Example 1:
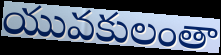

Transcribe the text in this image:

యువకులంతా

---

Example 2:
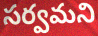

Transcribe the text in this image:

సర్వమని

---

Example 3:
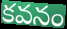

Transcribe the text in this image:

కవనం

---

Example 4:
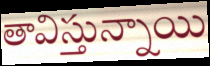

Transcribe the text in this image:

తావిస్తున్నాయి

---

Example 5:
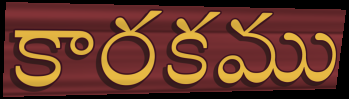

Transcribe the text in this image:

కారకము